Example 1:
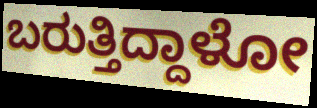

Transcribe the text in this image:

ಬರುತ್ತಿದ್ದಾಳೋ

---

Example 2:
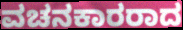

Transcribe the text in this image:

ವಚನಕಾರರಾದ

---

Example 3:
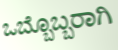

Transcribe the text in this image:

ಒಬ್ಬೊಬ್ಬರಾಗಿ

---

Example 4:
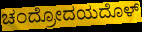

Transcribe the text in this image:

ಚಂದ್ರೋದಯದೊಳ್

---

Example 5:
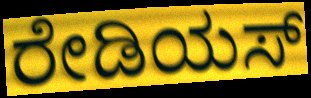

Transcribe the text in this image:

ರೇಡಿಯಸ್